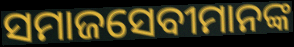
ସମାଜସେବୀମାନଙ୍କ